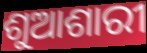
ଶୁଆଶାରୀ